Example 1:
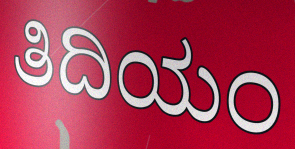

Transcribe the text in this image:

ತಿದಿಯಂ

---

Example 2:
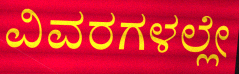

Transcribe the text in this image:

ವಿವರಗಳಲ್ಲೇ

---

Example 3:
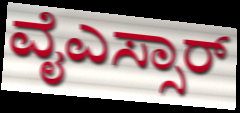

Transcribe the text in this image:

ವೈಎಸ್ಸಾರ್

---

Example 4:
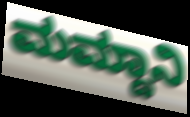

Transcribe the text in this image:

ಮಮ್ದಾನಿ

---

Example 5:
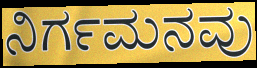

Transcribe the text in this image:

ನಿರ್ಗಮನವು